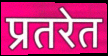
प्रतरेत